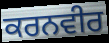
ਕਰਨਵੀਰ